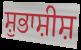
ਸ਼ੁਭਾਸ਼ੀਸ਼